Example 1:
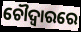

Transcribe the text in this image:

ଚୌଦ୍ୱାରରେ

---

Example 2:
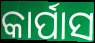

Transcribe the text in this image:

କାର୍ପାସ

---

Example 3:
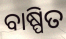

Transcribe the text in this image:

ବାଷ୍ପିତ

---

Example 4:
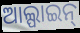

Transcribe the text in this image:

ଆଲ୍ପାଇନ୍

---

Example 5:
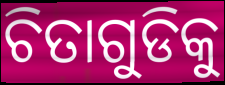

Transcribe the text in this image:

ଚିତାଗୁଡିକୁ